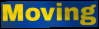
Moving